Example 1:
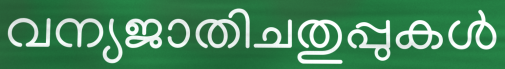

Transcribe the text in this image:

വന്യജാതിചതുപ്പുകൾ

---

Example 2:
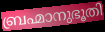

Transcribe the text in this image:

ബ്രഹ്മാനുഭൂതി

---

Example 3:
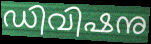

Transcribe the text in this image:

ഡിവിഷനു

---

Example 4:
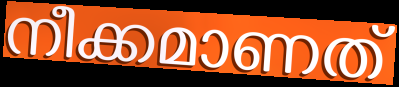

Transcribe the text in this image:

നീക്കമാണത്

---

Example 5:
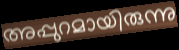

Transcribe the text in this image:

അപ്പുറമായിരുന്നു